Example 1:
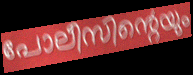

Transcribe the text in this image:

പോലീസിന്റെയും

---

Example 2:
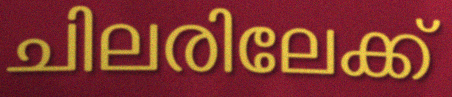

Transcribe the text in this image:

ചിലരിലേക്ക്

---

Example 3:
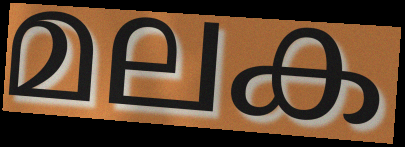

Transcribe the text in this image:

മലക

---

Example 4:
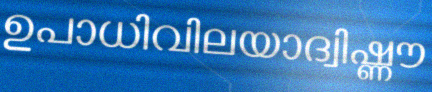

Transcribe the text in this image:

ഉപാധിവിലയാദ്വിഷ്ണൗ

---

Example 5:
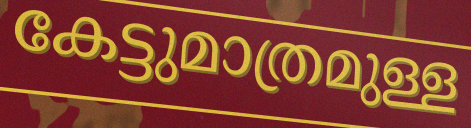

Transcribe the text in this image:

കേട്ടുമാത്രമുള്ള